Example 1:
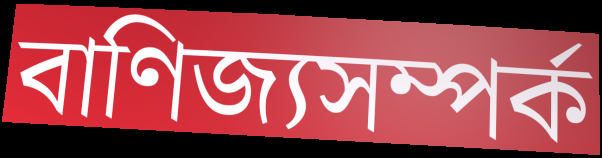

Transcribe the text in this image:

বাণিজ্যসম্পর্ক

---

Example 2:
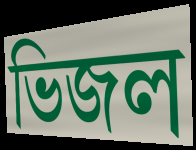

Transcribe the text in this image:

ভিজল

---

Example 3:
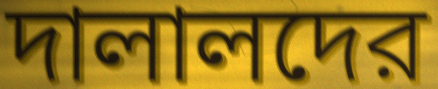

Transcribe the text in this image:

দালালদের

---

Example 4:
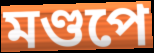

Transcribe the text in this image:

মণ্ডপে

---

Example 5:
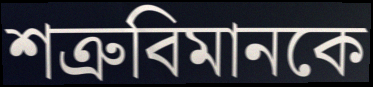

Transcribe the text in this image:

শত্রুবিমানকে